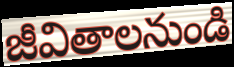
జీవితాలనుండి